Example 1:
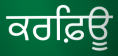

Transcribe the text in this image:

ਕਰਫ਼ਿਊ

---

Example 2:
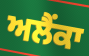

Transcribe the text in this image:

ਅਲੈਂਕਾ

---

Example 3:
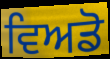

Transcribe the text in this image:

ਵਿਅਡੋ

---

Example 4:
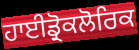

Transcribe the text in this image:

ਹਾਈਡ੍ਰੋਕਲੋਰਿਕ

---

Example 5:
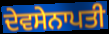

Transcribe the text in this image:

ਦੇਵਸੇਨਾਪਤੀ